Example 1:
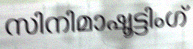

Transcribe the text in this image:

സിനിമാഷൂട്ടിംഗ്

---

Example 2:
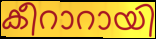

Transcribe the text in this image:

കീറാറായി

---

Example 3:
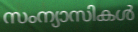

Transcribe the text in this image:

സംന്യാസികൾ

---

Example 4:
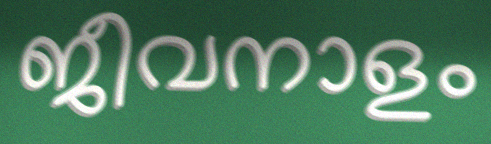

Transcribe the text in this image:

ജീവനാളം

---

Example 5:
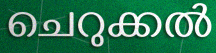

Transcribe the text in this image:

ചെറുക്കൽ